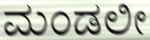
ಮಂಡಲೀ